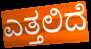
ಎತ್ತಲಿದೆ